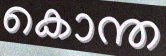
കൊന്ത